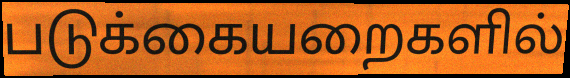
படுக்கையறைகளில்